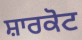
ਸ਼ਾਰਕੋਟ